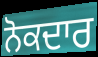
ਨੋਕਦਾਰ